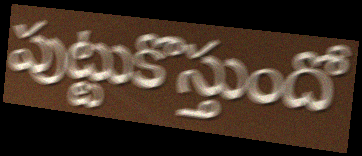
పుట్టుకొస్తుందో